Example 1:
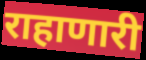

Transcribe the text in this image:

राहाणारी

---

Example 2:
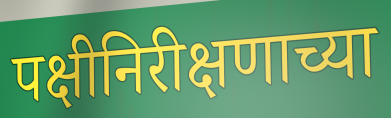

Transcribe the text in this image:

पक्षीनिरीक्षणाच्या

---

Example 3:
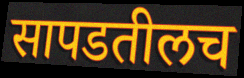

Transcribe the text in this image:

सापडतीलच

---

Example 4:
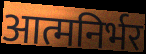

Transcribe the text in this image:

आत्मनिर्भर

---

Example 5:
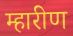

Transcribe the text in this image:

म्हारीण